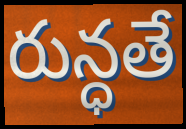
రున్ధతే